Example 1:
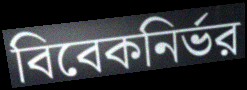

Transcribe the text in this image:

বিবেকনির্ভর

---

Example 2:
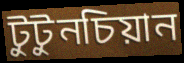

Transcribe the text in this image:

টুটুনচিয়ান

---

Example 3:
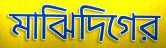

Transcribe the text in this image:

মাঝিদিগের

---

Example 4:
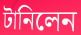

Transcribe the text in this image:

টানিলেন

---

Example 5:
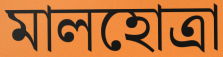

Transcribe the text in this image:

মালহোত্রা